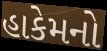
હાકેમનો